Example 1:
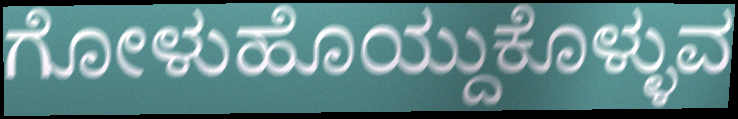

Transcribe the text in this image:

ಗೋಳುಹೊಯ್ದುಕೊಳ್ಳುವ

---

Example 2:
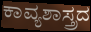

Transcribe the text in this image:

ಕಾವ್ಯಶಾಸ್ತ್ರದ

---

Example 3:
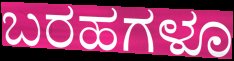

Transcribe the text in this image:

ಬರಹಗಳೂ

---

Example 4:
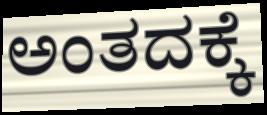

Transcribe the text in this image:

ಅಂತದಕ್ಕೆ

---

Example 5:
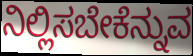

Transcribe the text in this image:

ನಿಲ್ಲಿಸಬೇಕೆನ್ನುವ